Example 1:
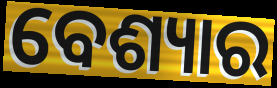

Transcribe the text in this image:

ବେଶ୍ୟାର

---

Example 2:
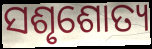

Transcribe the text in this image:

ସଶୃଶୋତ୍ୟ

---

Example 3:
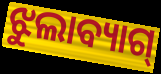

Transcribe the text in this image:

ଝୁଲାବ୍ୟାଗ୍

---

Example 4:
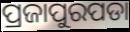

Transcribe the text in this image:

ପ୍ରଜାପୁରପଡା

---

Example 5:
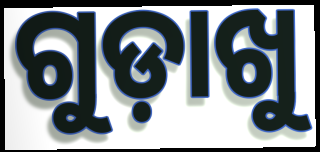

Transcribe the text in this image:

ଗୁଡ଼ାଖୁ